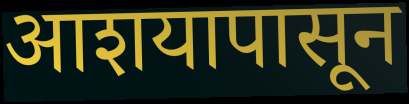
आशयापासून